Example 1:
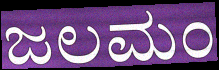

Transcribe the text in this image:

ಜಲಮಂ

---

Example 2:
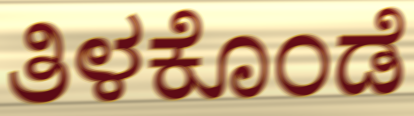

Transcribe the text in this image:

ತಿಳಕೊಂಡೆ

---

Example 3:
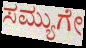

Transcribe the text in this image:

ಸಮ್ಯುಗೇ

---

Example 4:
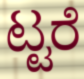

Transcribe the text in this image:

ಟ್ಟರೆ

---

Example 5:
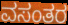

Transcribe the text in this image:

ವಸಂತರ